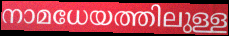
നാമധേയത്തിലുള്ള